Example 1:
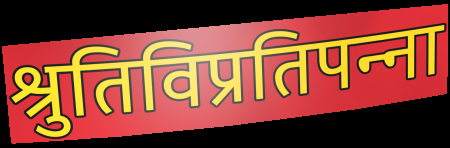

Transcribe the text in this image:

श्रुतिविप्रतिपन्ना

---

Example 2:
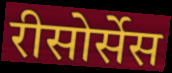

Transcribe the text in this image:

रीसोर्सेस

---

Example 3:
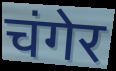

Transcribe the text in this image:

चंगेर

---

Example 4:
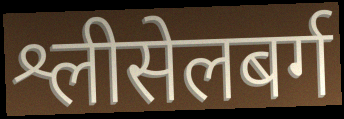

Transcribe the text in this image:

श्लीसेलबर्ग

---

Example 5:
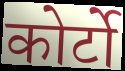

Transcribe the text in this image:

कोर्टो